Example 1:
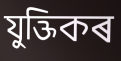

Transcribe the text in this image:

যুক্তিকৰ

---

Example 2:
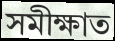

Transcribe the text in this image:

সমীক্ষাত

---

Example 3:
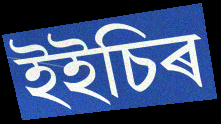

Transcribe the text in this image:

ইইচিৰ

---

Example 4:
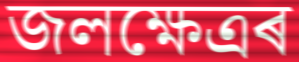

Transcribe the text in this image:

জলক্ষেত্ৰৰ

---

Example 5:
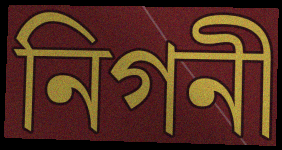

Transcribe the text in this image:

নিগনী